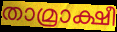
താമ്രാക്ഷീ